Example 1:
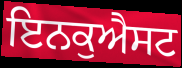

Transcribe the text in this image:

ਇਨਕੁਐਸਟ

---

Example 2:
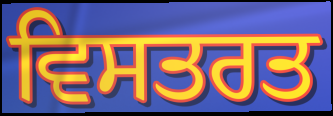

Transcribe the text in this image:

ਵਿਸਤਰਤ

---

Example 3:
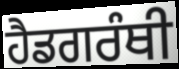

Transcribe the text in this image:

ਹੈਡਗਰੰਥੀ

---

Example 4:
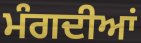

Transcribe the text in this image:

ਮੰਗਦੀਆਂ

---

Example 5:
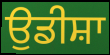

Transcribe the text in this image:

ਉਡੀਸ਼ਾ